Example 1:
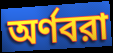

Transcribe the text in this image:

অর্ণবরা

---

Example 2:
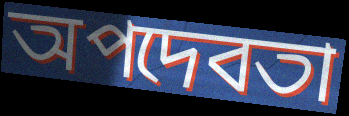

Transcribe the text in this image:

অপদেবতা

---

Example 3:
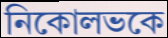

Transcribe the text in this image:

নিকোলভকে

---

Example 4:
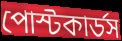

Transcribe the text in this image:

পোস্টকার্ডস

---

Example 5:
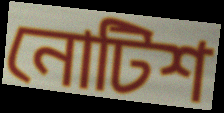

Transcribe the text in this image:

নোটিশ